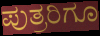
ಪುತ್ರರಿಗೂ